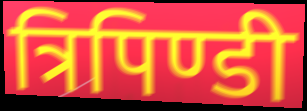
त्रिपिण्डी